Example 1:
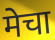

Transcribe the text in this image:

मेचा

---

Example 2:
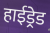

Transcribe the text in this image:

हाईड्रेड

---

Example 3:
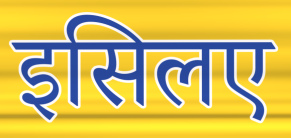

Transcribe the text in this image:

इसिलए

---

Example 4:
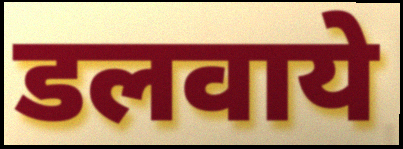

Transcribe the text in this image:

डलवाये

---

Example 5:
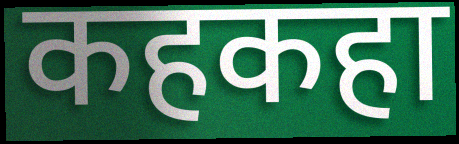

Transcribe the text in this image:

कहकहा